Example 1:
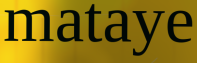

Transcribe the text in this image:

mataye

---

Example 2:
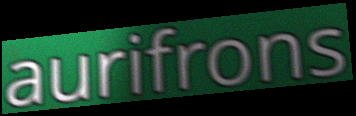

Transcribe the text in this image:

aurifrons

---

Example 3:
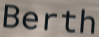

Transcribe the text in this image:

Berth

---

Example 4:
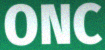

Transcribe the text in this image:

ONC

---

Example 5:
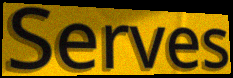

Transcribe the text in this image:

Serves